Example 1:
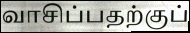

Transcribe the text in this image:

வாசிப்பதற்குப்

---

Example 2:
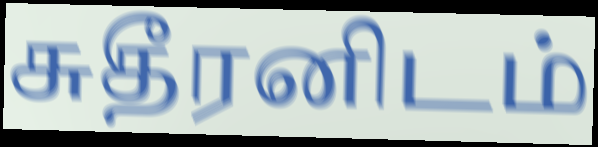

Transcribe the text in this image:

சுதீரனிடம்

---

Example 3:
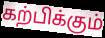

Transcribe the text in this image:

கற்பிக்கும்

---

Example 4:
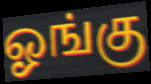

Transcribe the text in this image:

ஓங்கு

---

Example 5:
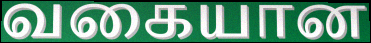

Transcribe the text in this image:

வகையான